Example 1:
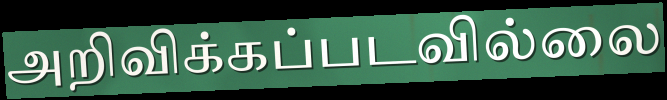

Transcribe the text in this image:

அறிவிக்கப்படவில்லை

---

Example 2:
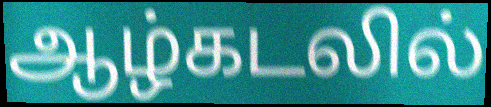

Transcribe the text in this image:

ஆழ்கடலில்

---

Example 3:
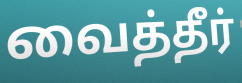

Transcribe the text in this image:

வைத்தீர்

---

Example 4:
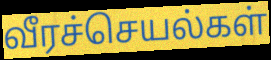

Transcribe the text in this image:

வீரச்செயல்கள்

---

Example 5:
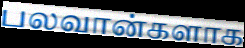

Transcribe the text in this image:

பலவான்களாக